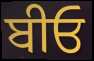
ਬੀਓ